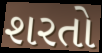
શરતો